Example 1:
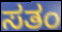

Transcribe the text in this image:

ಸತಂ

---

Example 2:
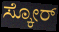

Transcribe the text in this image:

ಸ್ಕೋರ್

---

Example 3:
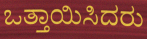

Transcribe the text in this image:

ಒತ್ತಾಯಿಸಿದರು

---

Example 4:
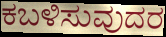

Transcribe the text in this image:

ಕಬಳಿಸುವುದರ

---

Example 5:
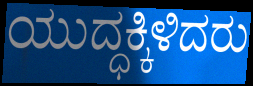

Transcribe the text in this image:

ಯುದ್ಧಕ್ಕಿಳಿದರು